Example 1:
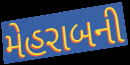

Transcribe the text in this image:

મેહરાબની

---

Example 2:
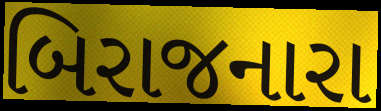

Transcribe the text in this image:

બિરાજનારા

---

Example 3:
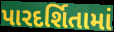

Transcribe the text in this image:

પારદર્શિતામાં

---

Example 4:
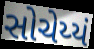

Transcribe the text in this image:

સોચેય્યં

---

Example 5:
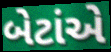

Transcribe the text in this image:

બેટાંએ